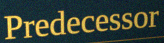
Predecessor